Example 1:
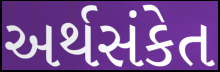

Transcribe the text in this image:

અર્થસંકેત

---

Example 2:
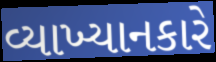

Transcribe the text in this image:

વ્યાખ્યાનકારે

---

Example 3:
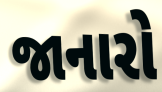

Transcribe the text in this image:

જાનારો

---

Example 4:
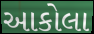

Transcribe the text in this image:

આકોલા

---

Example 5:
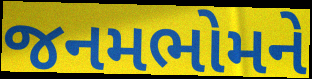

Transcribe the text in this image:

જનમભોમને